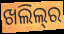
ଖଲିଲ୍‍ର